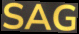
SAG